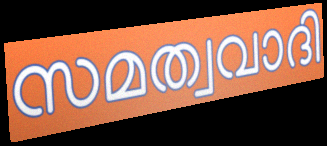
സമത്വവാദി